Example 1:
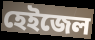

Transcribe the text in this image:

হেইজেল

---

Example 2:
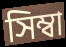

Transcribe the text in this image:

সিম্বা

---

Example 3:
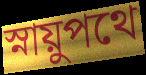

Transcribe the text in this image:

স্নায়ুপথে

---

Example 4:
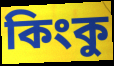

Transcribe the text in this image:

কিংকু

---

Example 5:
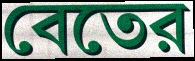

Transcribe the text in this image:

বেতের